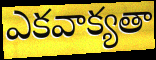
ఎకవాక్యతా